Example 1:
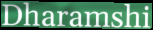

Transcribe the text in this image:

Dharamshi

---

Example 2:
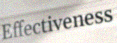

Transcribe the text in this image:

Effectiveness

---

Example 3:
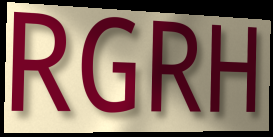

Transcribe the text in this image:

RGRH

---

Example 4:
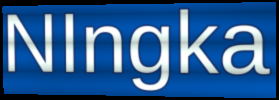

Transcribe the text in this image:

NIngka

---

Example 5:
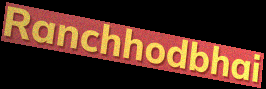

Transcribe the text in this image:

Ranchhodbhai